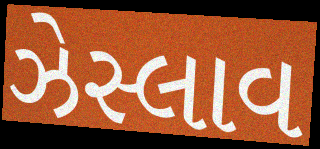
ઝેસ્લાવ